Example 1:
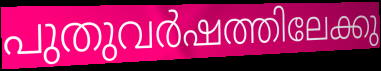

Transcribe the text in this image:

പുതുവർഷത്തിലേക്കു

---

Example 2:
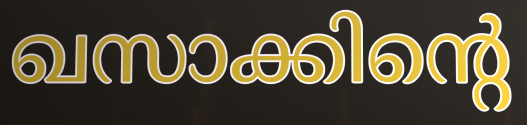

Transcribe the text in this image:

ഖസാക്കിന്റെ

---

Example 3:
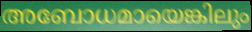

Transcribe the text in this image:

അബോധമായെങ്കിലും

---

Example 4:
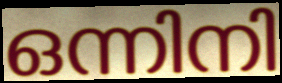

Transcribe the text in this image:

ഒന്നിനി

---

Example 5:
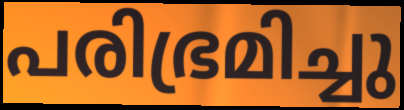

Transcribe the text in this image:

പരിഭ്രമിച്ചു